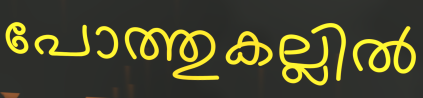
പോത്തുകല്ലിൽ